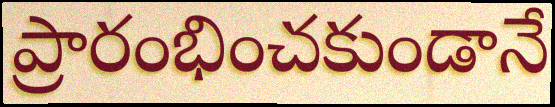
ప్రారంభించకుండానే